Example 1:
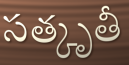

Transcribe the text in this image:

సత్కృతీ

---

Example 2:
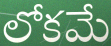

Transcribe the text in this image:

లోకమే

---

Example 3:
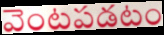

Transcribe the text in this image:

వెంటపడటం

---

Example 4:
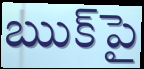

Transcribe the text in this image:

ఋక్‌పై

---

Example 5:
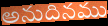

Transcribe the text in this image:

అనుదినము